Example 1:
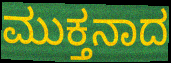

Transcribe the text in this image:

ಮುಕ್ತನಾದ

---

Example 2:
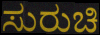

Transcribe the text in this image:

ಸುರುಚಿ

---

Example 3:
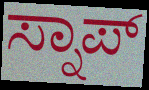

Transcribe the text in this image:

ಸ್ನಾಪ್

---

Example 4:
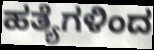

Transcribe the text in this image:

ಹತ್ಯೆಗಳಿಂದ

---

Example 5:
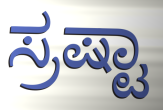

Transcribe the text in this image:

ಸ್ರಷ್ಟಾ